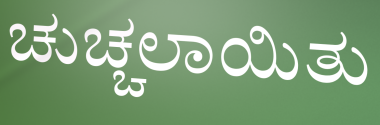
ಚುಚ್ಚಲಾಯಿತು